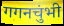
गगनचुंभी